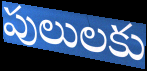
పులులకు